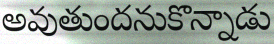
అవుతుందనుకొన్నాడు